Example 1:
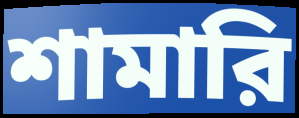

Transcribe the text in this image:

শামারি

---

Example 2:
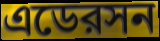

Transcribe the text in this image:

এডেরসন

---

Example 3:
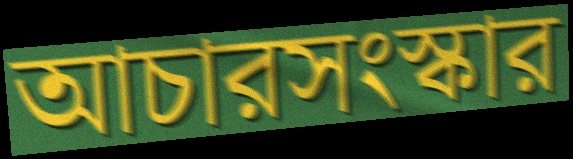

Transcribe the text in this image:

আচারসংস্কার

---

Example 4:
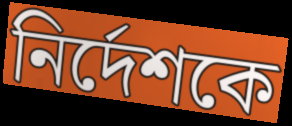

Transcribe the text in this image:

নির্দেশকে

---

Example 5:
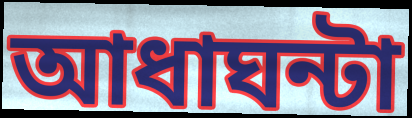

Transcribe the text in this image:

আধাঘন্টা